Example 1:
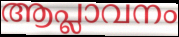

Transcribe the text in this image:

ആപ്ലാവനം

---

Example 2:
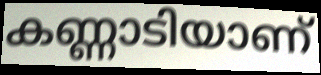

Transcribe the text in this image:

കണ്ണാടിയാണ്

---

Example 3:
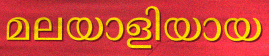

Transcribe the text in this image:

മലയാളിയായ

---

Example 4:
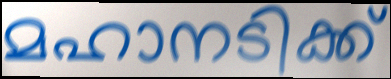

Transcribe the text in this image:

മഹാനടിക്ക്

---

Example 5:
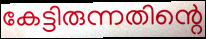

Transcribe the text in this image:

കേട്ടിരുന്നതിന്റെ